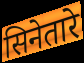
सिनेतारे